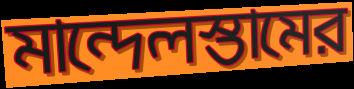
মান্দেলস্তামের